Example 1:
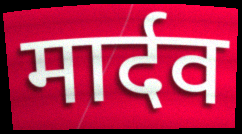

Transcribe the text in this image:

मार्दव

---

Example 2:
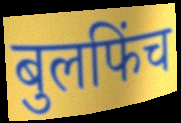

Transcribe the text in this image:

बुलफिंच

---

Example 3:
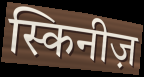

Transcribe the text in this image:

स्किनीज़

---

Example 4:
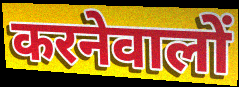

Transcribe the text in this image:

करनेवालों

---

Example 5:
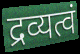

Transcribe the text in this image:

द्रव्यत्वं